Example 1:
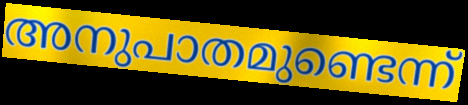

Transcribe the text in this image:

അനുപാതമുണ്ടെന്ന്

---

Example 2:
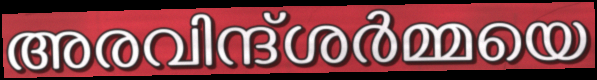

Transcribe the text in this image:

അരവിന്ദ്ശർമ്മയെ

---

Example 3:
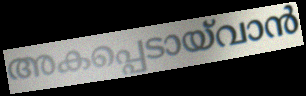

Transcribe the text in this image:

അകപ്പെടായ്‌വാൻ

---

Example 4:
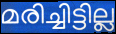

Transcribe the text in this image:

മരിച്ചിട്ടില്ല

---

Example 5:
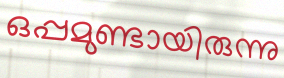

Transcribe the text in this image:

ഒപ്പമുണ്ടായിരുന്നു